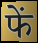
फें